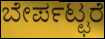
ಬೇರ್ಪಟ್ಟರೆ